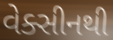
વેક્સીનથી